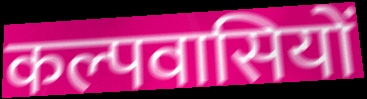
कल्पवासियों